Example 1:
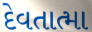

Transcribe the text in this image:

દેવતાત્મા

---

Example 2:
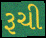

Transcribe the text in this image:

રૂચી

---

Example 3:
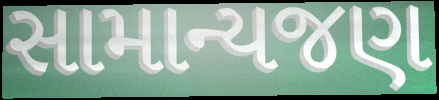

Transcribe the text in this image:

સામાન્યજણ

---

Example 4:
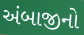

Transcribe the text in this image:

અંબાજીનો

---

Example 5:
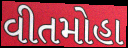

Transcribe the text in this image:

વીતમોહા